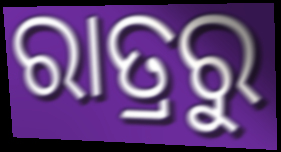
ରାତ୍ରରୁ